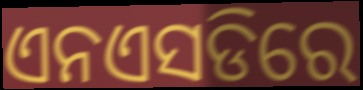
ଏନଏସଡିରେ